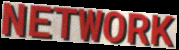
NETWORK